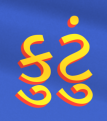
કુટું